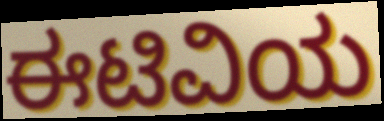
ಈಟಿವಿಯ